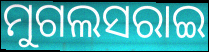
ମୁଗଲସରାଇ